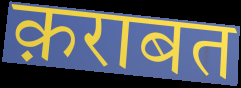
क़राबत